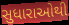
સુધારાઓથી